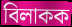
বিলাকক